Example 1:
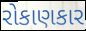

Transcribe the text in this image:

રોકાણકાર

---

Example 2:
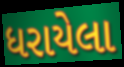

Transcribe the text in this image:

ધરાયેલા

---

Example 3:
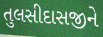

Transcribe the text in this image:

તુલસીદાસજીને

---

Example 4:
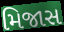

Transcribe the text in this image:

મિજાસ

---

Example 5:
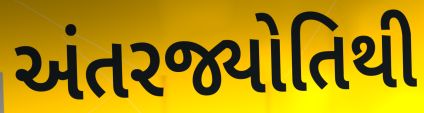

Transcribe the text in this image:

અંતરજ્યોતિથી